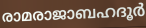
രാമരാജാബഹദൂർ